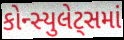
કોન્સ્યુલેટ્સમાં